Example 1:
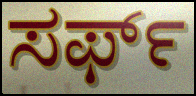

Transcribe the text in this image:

ಸರ್ಫ್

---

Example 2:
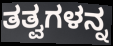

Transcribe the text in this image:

ತತ್ವಗಳನ್ನ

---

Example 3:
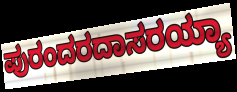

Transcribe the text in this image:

ಪುರಂದರದಾಸರಯ್ಯಾ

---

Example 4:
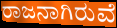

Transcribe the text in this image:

ರಾಜನಾಗಿರುವೆ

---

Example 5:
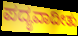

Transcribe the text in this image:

ಪದ್ಯವಾದೀತು